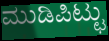
ಮುಡಿಪಿಟ್ಟು